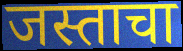
जस्ताचा